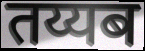
तय्यब